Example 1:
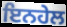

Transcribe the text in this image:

ਇਨਹੇਲ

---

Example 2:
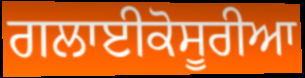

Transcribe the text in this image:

ਗਲਾਈਕੋਸੂਰੀਆ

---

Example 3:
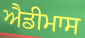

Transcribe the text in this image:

ਐਡੀਮਾਸ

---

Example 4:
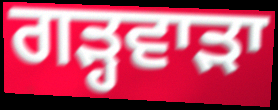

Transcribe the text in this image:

ਗੜ੍ਹਵਾੜਾ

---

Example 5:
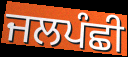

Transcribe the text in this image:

ਜਲਪੰਛੀ